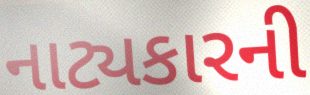
નાટ્યકારની